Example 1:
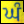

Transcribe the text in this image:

ਘੰ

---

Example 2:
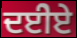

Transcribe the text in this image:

ਦਈੇਏ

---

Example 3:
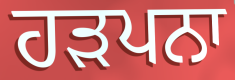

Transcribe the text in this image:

ਹੜਪਨਾ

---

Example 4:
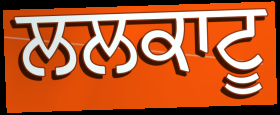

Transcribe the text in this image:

ਲਲਕਾਟੂ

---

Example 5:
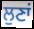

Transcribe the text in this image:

ਲੁਣਾਂ